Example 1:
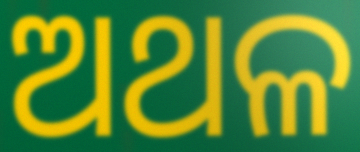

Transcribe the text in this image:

ଅଥଳ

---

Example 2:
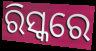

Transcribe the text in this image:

ରିସ୍କରେ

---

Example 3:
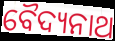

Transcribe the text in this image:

ବୈଦ୍ୟନାଥ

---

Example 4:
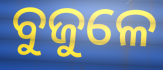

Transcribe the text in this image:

ବୁଜୁଳେ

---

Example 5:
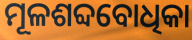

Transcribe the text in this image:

ମୂଳଶବ୍ଦବୋଧିକା